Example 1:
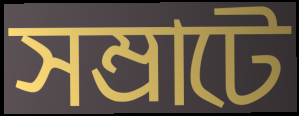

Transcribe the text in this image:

সম্ৰাটে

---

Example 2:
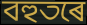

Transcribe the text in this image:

বহুতৰে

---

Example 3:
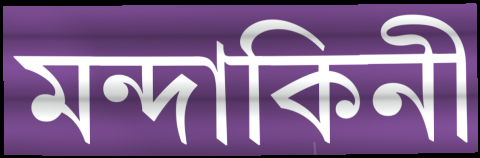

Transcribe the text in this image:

মন্দাকিনী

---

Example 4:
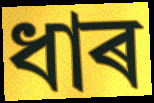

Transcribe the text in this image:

ধাৰ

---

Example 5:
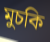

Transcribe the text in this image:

মুচকি